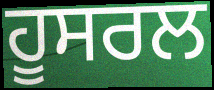
ਹੂਸਰਲ